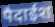
पैदाईश